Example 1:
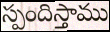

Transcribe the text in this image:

స్పందిస్తాము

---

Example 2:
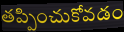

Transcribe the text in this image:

తప్పించుకోవడం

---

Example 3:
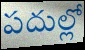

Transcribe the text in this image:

పదుల్లో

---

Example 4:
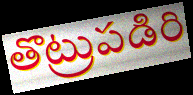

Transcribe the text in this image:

తొట్రుపడిరి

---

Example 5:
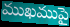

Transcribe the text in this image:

ముఖముపై